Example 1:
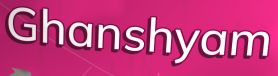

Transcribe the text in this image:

Ghanshyam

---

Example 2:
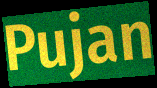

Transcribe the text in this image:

Pujan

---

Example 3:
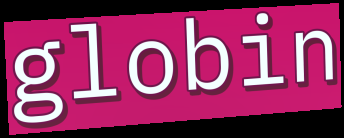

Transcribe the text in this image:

globin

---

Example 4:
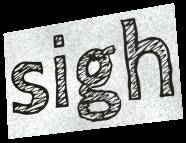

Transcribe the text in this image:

sigh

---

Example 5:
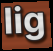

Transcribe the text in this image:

lig